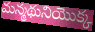
మన్మథునియొక్క